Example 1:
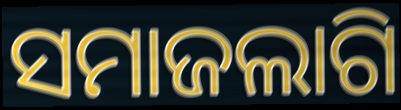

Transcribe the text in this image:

ସମାଜଲାଗି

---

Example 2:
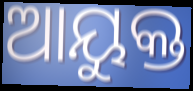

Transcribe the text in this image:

ଆୟୁକ୍ତ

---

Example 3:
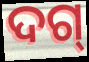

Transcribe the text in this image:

ଦଗ୍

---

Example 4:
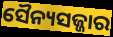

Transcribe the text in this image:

ସୈନ୍ୟସଜ୍ଜାର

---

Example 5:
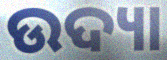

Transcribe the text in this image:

ଉଦ୍ୟା